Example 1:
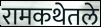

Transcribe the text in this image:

रामकथेतले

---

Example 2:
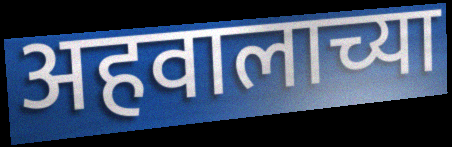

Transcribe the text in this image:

अहवालाच्या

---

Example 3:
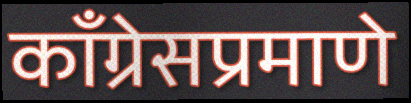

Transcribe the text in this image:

काँग्रेसप्रमाणे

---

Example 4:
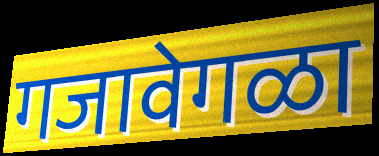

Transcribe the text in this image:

गजावेगळा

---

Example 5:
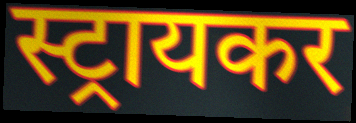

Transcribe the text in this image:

स्ट्रायकर